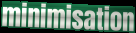
minimisation